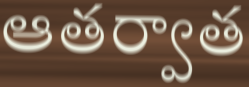
ఆతర్వాత